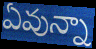
ఏవున్నా